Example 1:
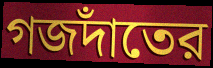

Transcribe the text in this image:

গজদাঁতের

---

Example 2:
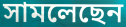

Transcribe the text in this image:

সামলেছেন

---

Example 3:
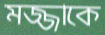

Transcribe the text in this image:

মজ্জাকে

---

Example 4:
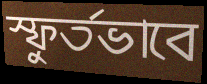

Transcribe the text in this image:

স্ফুর্তভাবে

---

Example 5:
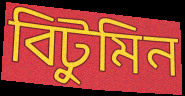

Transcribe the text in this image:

বিটুমিন